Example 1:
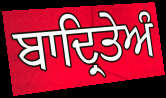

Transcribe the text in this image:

ਬਾਦ੍ਰਿਤੇਅੰ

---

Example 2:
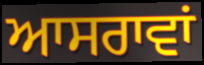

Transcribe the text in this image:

ਆਸਰਾਵਾਂ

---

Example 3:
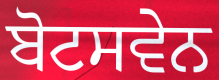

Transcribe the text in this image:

ਬੋਟਸਵੇਨ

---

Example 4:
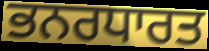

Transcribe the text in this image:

ਭਨਰਧਾਰਤ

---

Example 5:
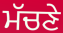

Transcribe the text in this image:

ਮੱਚਣੇ